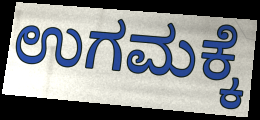
ಉಗಮಕ್ಕೆ